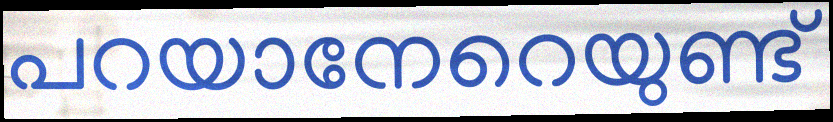
പറയാനേറെയുണ്ട്